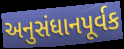
અનુસંધાનપૂર્વક